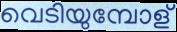
വെടിയുമ്പോള്